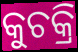
କୁଚକ୍ରି